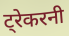
ट्रेकरनी